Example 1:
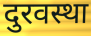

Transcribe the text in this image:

दुरवस्था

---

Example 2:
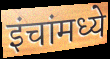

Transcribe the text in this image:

इंचांमध्ये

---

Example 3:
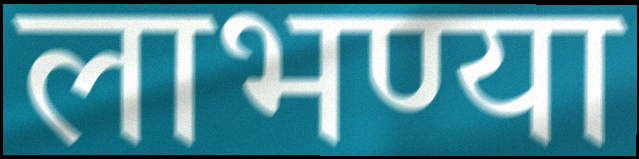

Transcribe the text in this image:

लाभण्या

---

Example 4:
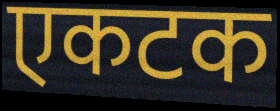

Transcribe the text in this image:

एकटक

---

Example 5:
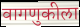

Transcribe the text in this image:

वागणुकीला